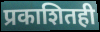
प्रकाशितही